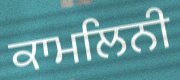
ਕਾਮਲਿਨੀ